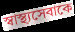
স্বাস্থ্যসেবাকে